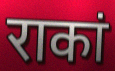
राकां